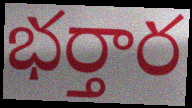
భర్తార